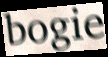
bogie